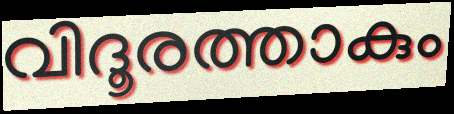
വിദൂരത്താകും